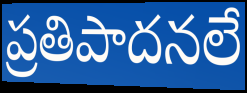
ప్రతిపాదనలే